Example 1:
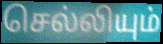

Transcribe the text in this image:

செல்லியும்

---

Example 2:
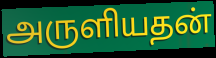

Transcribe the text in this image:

அருளியதன்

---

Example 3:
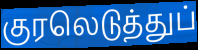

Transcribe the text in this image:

குரலெடுத்துப்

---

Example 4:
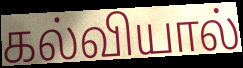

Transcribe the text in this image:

கல்வியால்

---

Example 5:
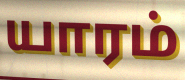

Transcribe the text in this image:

யாரம்